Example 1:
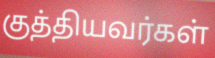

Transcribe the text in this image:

குத்தியவர்கள்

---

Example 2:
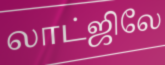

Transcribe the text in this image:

லாட்ஜிலே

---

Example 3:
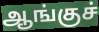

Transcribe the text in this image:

ஆங்குச்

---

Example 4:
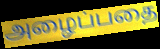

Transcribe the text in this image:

அழைப்பதை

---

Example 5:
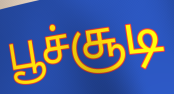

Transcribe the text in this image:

பூச்சூடி